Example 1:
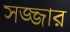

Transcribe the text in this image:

সজ্জার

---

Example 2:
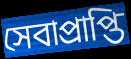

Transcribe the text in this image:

সেবাপ্রাপ্তি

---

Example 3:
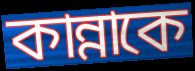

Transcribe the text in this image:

কান্নাকে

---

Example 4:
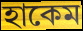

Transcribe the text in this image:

হাকেম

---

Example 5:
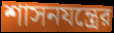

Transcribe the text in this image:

শাসনযন্ত্রের